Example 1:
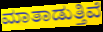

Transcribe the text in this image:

ಮಾತಾಡುತ್ತಿವೆ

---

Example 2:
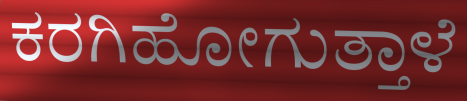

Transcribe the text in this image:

ಕರಗಿಹೋಗುತ್ತಾಳೆ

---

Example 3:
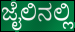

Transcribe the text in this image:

ಜೈಲಿನಲ್ಲಿ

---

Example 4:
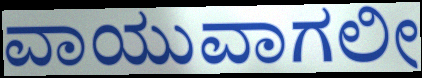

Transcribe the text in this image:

ವಾಯುವಾಗಲೀ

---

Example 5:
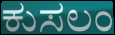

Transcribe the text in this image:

ಕುಸಲಂ